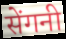
सेंगनी